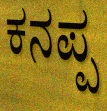
ಕನಪ್ಪ